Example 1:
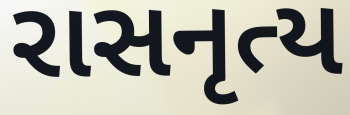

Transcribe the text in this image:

રાસનૃત્ય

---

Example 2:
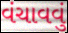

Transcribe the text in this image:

વંચાવવું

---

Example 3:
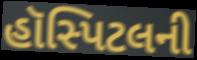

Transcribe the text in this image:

હૉસ્પિટલની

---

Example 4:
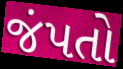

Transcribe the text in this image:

જંપતો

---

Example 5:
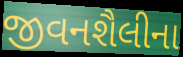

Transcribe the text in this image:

જીવનશૈલીના